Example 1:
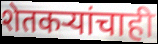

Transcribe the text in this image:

शेतकऱ्यांचाही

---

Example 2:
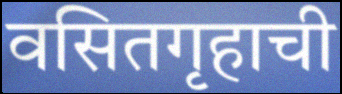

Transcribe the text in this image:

वसितगृहाची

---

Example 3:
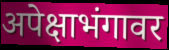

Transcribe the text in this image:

अपेक्षाभंगावर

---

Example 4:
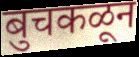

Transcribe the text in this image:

बुचकळून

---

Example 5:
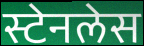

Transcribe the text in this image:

स्टेनलेस